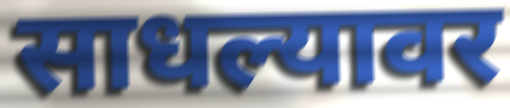
साधल्यावर